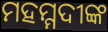
ମହମ୍ମଦୀଙ୍କ